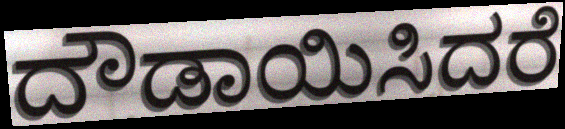
ದೌಡಾಯಿಸಿದರೆ